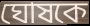
ঘোষকে